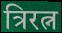
त्रिरत्न